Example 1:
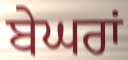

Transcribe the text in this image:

ਬੇਘਰਾਂ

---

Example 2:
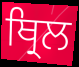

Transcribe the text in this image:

ਥ੍ਰਿਲ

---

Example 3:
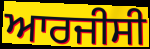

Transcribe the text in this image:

ਆਰਜੀਸੀ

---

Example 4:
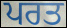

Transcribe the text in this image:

ਪਰਤ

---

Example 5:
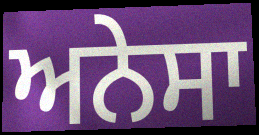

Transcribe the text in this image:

ਅਨੇਸਾ